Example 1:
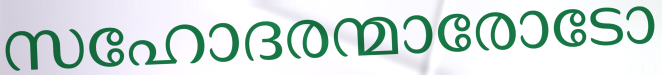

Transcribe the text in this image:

സഹോദരന്മാരോടോ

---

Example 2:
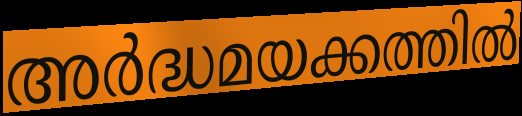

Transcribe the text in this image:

അർദ്ധമയക്കത്തിൽ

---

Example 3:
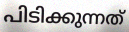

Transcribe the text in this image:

പിടിക്കുന്നത്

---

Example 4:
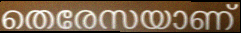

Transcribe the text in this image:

തെരേസയാണ്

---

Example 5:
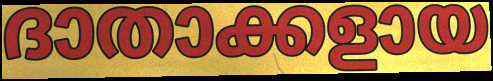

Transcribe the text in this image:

ദാതാക്കളായ